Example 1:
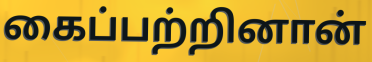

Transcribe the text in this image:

கைப்பற்றினான்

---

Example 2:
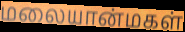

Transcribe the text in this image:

மலையான்மகள்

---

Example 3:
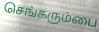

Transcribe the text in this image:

செங்கரும்பை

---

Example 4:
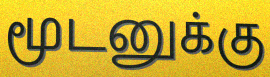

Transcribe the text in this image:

மூடனுக்கு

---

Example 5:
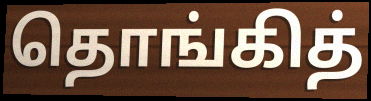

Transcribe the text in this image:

தொங்கித்